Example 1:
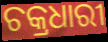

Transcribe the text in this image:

ଚକ୍ରଧାରୀ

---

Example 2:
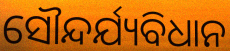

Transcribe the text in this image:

ସୌନ୍ଦର୍ଯ୍ୟବିଧାନ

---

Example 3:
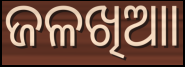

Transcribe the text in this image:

ଜଳଖିଆା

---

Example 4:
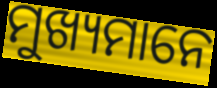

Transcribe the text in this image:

ମୁଖ୍ୟମାନେ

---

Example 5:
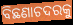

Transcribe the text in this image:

ବିଛଣାଚଦରକୁ